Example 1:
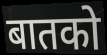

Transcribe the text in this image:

बातको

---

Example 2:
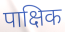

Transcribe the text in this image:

पाक्षिक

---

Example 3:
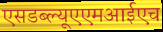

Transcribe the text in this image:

एसडब्ल्यूएएमआईएच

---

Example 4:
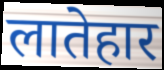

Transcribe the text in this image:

लातेहार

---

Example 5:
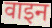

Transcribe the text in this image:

वाइन